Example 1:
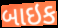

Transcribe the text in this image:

બાઇક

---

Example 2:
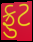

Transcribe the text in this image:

ફ્રુટ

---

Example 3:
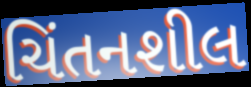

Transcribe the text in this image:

ચિંતનશીલ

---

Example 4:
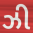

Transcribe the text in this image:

ઝી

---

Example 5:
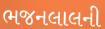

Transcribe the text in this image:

ભજનલાલની